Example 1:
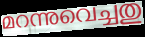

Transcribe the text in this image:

മറന്നുവെച്ചതു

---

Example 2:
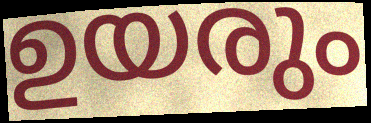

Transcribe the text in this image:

ഉയരും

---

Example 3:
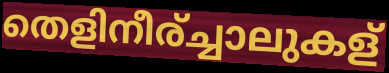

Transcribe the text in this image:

തെളിനീര്ച്ചാലുകള്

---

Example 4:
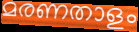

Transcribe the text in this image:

മരണതാളം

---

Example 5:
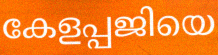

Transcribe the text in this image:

കേളപ്പജിയെ